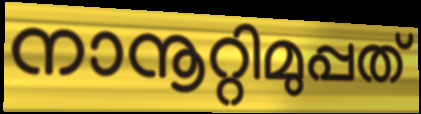
നാനൂറ്റിമുപ്പത്